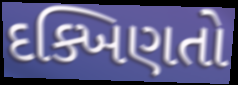
દક્ખિણતો